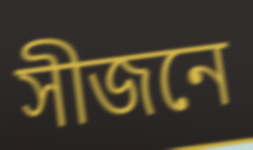
সীজনে